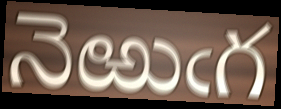
నెఱుఁగ